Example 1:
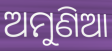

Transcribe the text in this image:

ଅମୁଣିଆ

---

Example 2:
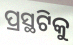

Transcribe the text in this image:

ପ୍ରସ୍ଥଟିକୁ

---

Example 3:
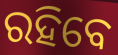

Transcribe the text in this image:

ରହିବେ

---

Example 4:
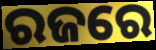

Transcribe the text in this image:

ରଜରେ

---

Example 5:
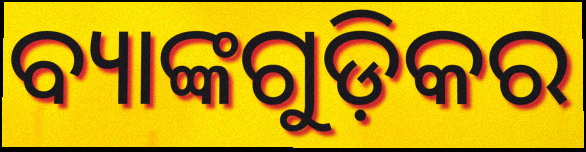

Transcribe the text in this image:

ବ୍ୟାଙ୍କଗୁଡ଼ିକର